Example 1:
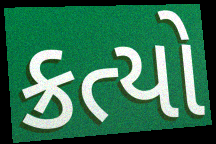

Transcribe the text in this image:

ક્રત્યો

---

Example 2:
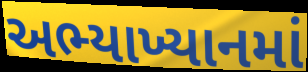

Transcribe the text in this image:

અભ્યાખ્યાનમાં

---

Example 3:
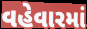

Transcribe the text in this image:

વહેવારમાં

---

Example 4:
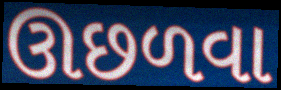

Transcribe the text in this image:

ઊછળવા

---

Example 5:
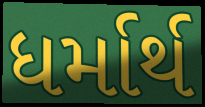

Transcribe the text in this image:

ધર્માર્થ